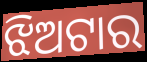
ଝିଅଟାର